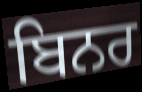
ਬਿਨਰ